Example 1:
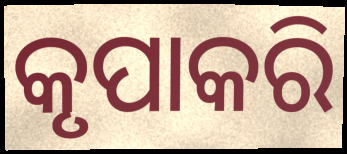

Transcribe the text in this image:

କୃପାକରି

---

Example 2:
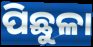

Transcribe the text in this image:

ପିଛୁଳା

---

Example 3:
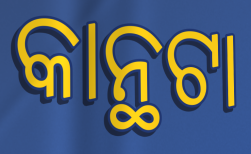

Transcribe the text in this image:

କାନ୍ଥଟା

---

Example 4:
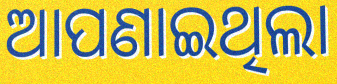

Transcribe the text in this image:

ଆପଣାଇଥିଲା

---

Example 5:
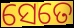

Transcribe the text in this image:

ସେତେ